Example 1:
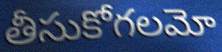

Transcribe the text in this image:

తీసుకోగలమో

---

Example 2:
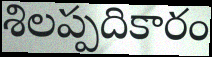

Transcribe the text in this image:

శిలప్పదికారం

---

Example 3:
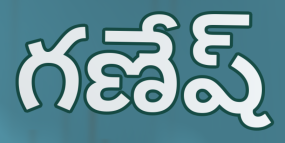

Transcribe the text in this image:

గణేష్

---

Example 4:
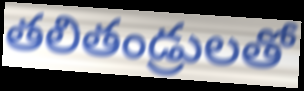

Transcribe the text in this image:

తలితండ్రులతో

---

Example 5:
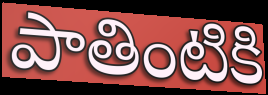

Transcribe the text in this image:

పాతింటికి